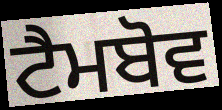
ਟੈਮਬੋਵ